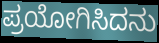
ಪ್ರಯೋಗಿಸಿದನು